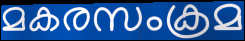
മകരസംക്രമ